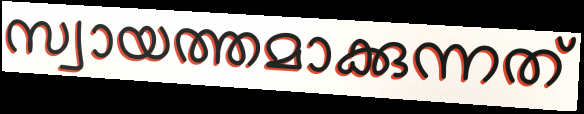
സ്വായത്തമാക്കുന്നത്